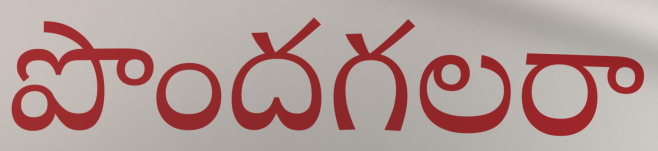
పొందగలరా